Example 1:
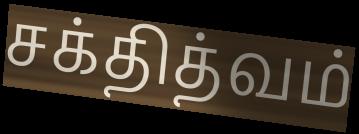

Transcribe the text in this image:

சக்தித்வம்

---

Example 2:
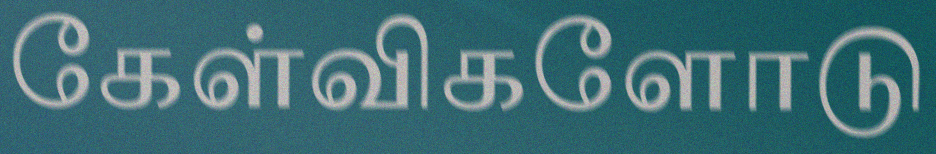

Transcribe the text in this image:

கேள்விகளோடு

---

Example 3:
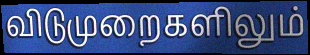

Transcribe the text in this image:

விடுமுறைகளிலும்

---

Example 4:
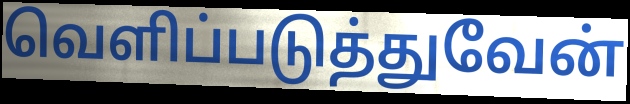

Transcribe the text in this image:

வெளிப்படுத்துவேன்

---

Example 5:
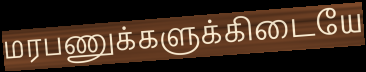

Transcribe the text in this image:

மரபணுக்களுக்கிடையே